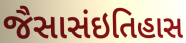
જૈસાસંઇતિહાસ